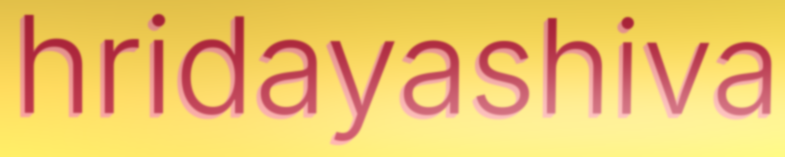
hridayashiva